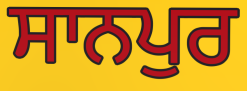
ਸਾਨਪੁਰ